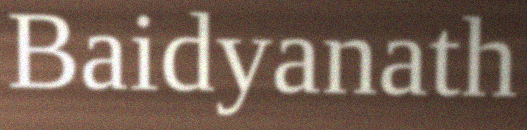
Baidyanath